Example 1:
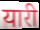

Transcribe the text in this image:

यारी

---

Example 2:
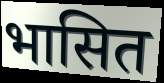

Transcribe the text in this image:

भासित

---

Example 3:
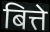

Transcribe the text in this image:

बित्ते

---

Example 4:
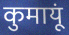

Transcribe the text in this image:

कुमायूं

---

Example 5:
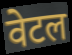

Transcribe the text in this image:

वेटल